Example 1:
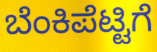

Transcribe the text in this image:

ಬೆಂಕಿಪೆಟ್ಟಿಗೆ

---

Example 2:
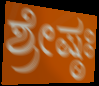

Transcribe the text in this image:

ಶ್ರೇಷ್ಠಃ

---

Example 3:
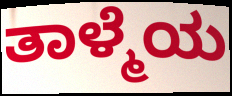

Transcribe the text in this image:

ತಾಳ್ಮೆಯ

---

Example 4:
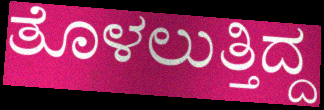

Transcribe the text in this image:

ತೊಳಲುತ್ತಿದ್ದ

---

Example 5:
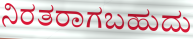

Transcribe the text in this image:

ನಿರತರಾಗಬಹುದು